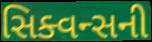
સિક્વન્સની